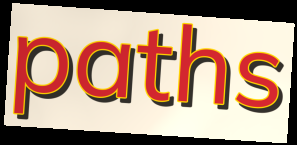
paths